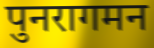
पुनरागमन